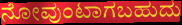
ನೋವುಂಟಾಗಬಹುದು